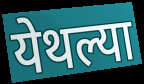
येथल्या